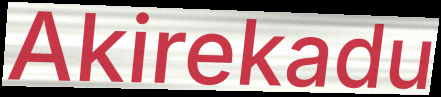
Akirekadu